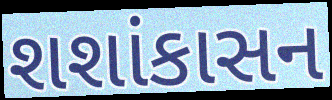
શશાંકાસન